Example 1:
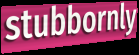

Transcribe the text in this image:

stubbornly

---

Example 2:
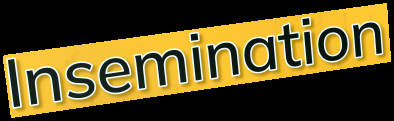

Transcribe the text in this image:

Insemination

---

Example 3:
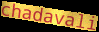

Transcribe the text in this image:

chadavali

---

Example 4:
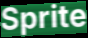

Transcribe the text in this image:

Sprite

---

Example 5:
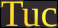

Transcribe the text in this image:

Tuc